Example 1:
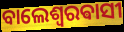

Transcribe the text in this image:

ବାଲେଶ୍ଵରଵାସୀ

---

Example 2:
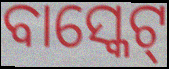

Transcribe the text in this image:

ବାସ୍କେଟ୍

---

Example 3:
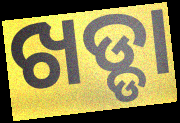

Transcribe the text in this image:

ଖଡ୍ଡା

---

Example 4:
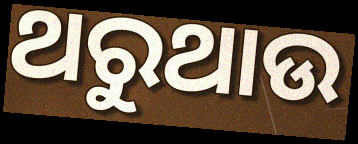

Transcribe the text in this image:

ଥରୁଥାଉ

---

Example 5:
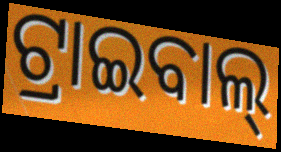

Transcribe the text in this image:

ଟ୍ରାଇବାଲ୍